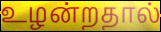
உழன்றதால்